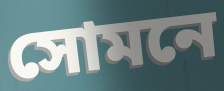
সোমনে